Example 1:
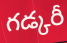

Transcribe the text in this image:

గడ్కరీ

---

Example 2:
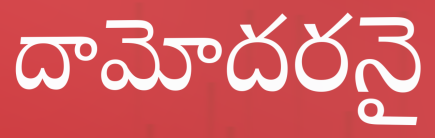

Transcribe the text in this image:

దామోదరనై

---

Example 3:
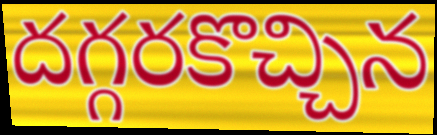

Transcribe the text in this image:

దగ్గరకొచ్చిన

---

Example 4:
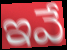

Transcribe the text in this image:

ఇవే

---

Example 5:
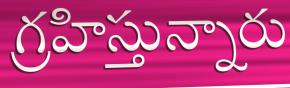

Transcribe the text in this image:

గ్రహిస్తున్నారు